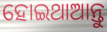
ହୋଇଥାଆନ୍ତୁ